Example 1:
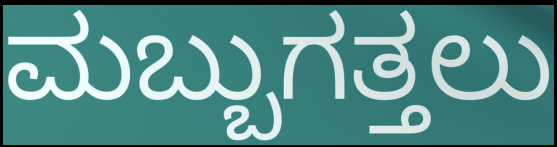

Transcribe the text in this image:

ಮಬ್ಬುಗತ್ತಲು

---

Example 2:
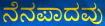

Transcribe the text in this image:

ನೆನಪಾದವು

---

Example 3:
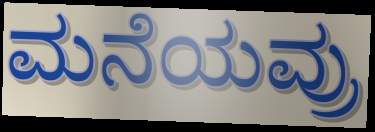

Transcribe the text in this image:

ಮನೆಯವ್ರು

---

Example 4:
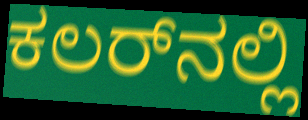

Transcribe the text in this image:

ಕಲರ್‌ನಲ್ಲಿ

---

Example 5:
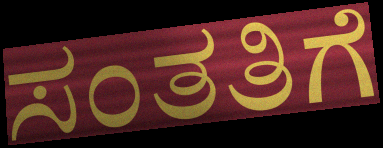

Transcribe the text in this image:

ಸಂತತಿಗೆ